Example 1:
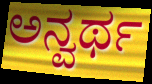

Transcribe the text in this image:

ಅನ್ವರ್ಥ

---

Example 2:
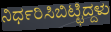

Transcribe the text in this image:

ನಿರ್ಧರಿಸಿಬಿಟ್ಟಿದ್ದಳು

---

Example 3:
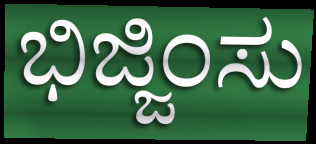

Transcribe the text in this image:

ಭಿಜ್ಜಿಂಸು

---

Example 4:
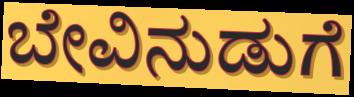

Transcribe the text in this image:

ಬೇವಿನುಡುಗೆ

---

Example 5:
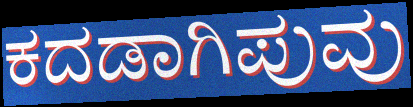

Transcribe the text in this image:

ಕದಡಾಗಿಪುವು